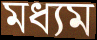
মধ্যম